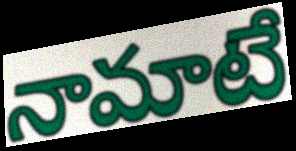
నామాటే